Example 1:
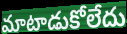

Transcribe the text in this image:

మాటాడుకోలేదు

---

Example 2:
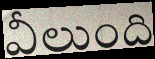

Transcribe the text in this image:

వీలుంది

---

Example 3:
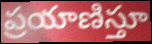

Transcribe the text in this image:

ప్రయాణిస్తూ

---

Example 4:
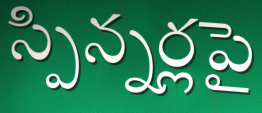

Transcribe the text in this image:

స్పిన్నర్లపై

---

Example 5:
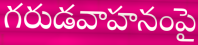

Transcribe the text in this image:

గరుడవాహనంపై